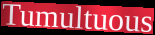
Tumultuous